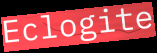
Eclogite